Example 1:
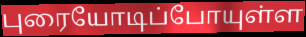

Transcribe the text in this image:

புரையோடிப்போயுள்ள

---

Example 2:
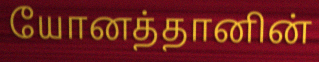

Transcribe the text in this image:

யோனத்தானின்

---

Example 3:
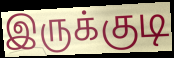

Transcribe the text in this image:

இருக்குடி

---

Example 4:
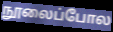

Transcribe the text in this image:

நூலைப்போல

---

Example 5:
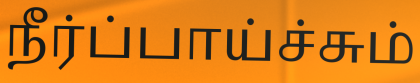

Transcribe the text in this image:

நீர்ப்பாய்ச்சும்